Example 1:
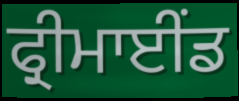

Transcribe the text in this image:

ਫ੍ਰੀਮਾਈਂਡ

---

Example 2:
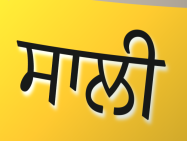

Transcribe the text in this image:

ਸਾਲੀ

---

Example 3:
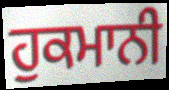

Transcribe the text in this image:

ਹੁਕਮਾਨੀ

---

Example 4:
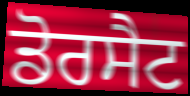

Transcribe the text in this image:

ਡੋਰਸੈਟ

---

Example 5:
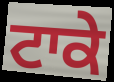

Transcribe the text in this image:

ਟਾਕੇ